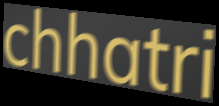
chhatri